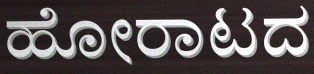
ಹೋರಾಟದ